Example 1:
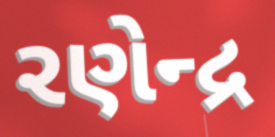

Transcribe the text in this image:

રણેન્દ્ર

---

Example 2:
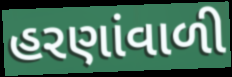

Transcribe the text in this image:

હરણાંવાળી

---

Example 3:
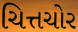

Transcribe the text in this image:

ચિત્તચોર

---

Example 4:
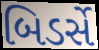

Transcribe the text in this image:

બિડર્સે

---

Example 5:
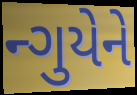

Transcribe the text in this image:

ન્ગુયેને